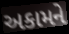
અકામને